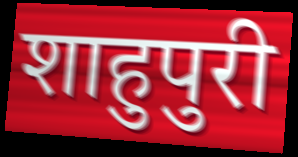
शाहुपुरी